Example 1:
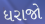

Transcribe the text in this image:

ધરાજો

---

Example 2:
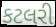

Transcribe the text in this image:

કટલરી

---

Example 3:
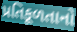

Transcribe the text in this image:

પ્રતિકૂળતાનો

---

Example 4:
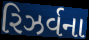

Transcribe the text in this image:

રિઝર્વના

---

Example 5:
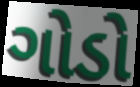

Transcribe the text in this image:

ગોડો